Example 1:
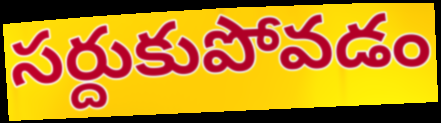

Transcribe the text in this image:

సర్దుకుపోవడం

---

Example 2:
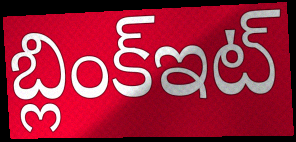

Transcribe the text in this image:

బ్లింక్ఇట్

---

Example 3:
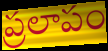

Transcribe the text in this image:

ప్రలాపం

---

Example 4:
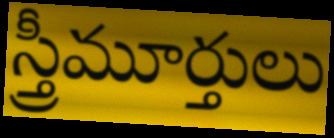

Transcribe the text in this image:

స్త్రీమూర్తులు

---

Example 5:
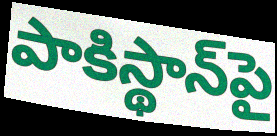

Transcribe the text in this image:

పాకిస్థాన్‌పై